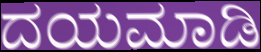
ದಯಮಾಡಿ